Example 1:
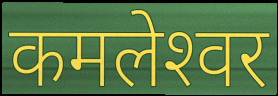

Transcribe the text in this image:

कमलेश्‍वर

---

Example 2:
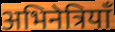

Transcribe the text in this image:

अभिनेत्रियाँ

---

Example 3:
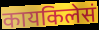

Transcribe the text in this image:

कायकिलेसं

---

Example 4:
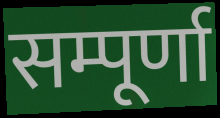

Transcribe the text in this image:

सम्पूर्णा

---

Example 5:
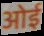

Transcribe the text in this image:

ओई